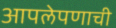
आपलेपणाची